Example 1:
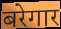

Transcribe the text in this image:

बरेगार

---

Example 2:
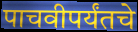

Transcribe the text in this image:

पाचवीपर्यंतचे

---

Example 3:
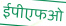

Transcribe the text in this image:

ईपीएफओ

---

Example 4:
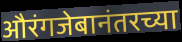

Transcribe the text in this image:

औरंगजेबानंतरच्या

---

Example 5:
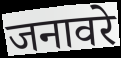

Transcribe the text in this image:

जनावरे